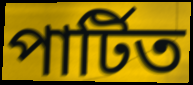
পাৰ্টিত